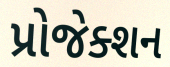
પ્રોજેક્શન